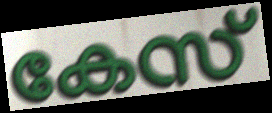
കേസ്